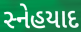
સ્નેહયાદ